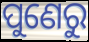
ପୁଣେରୁ